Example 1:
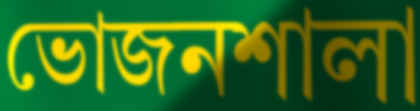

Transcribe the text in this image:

ভোজনশালা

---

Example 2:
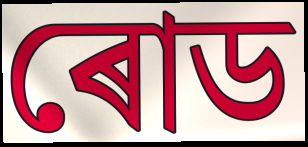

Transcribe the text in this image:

ৰোড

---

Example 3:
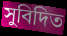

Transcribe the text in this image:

সুবিদিত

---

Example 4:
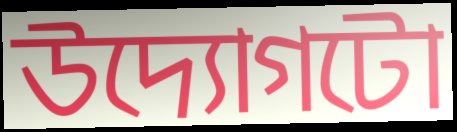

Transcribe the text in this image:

উদ্যোগটো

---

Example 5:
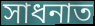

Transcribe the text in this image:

সাধনাত